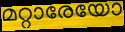
മറ്റാരേയോ